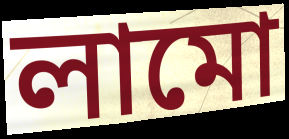
লামো